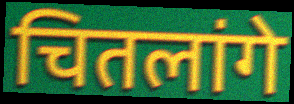
चितलांगे